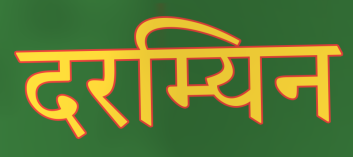
दरम्यिन